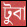
টুবা